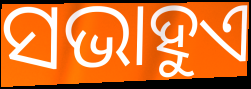
ସଭାହୁଏ